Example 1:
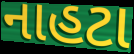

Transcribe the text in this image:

નાહટા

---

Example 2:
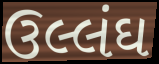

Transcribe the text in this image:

ઉલ્લંઘ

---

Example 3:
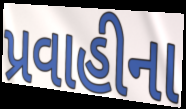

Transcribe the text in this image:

પ્રવાહીના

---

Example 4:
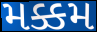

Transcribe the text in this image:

મક્કમ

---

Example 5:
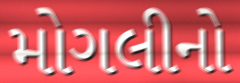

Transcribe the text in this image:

મોગલીનો